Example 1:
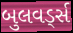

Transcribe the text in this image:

બુલવર્ડ્સ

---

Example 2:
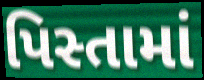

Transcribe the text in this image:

પિસ્તામાં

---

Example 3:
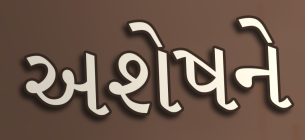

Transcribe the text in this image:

અશેષને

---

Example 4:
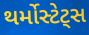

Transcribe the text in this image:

થર્મોસ્ટેટ્સ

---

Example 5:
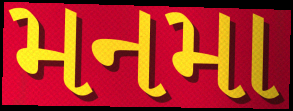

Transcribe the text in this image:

મનમા